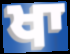
ਖਾ